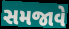
સમજાવે